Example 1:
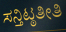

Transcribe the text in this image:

ಸನ್ತಿಟ್ಠತೀತಿ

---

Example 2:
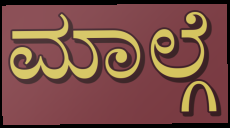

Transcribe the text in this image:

ಮಾಲ್ಗೆ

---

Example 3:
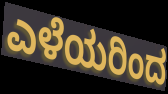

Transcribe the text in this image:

ಎಳೆಯರಿಂದ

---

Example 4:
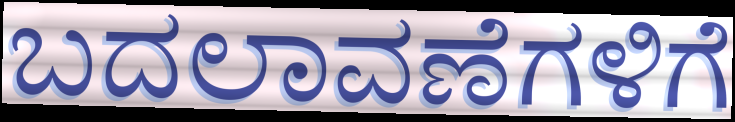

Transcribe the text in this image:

ಬದಲಾವಣೆಗಳಿಗೆ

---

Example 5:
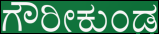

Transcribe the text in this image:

ಗೌರೀಕುಂಡ